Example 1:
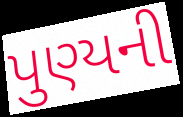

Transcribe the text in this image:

પુણ્યની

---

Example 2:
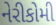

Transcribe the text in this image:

નેરીકોમી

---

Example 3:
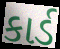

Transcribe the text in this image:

કાર્ડ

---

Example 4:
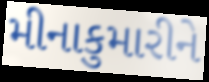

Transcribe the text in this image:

મીનાકુમારીને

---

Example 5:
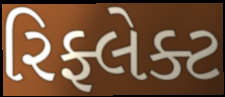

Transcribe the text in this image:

રિફ્લેક્ટ